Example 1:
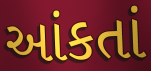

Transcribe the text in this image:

આંકતાં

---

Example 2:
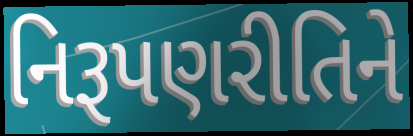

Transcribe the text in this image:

નિરૂપણરીતિને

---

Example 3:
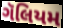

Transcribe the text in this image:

ગૅલિયમ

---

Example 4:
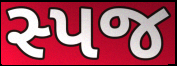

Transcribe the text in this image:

સ્પજ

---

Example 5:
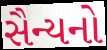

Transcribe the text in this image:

સૈન્યનો